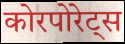
कोरपोरेट्स